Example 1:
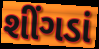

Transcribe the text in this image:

શીંગડાં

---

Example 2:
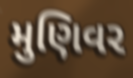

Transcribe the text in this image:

મુણિવર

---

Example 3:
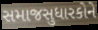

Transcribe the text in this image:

સમાજસુધારકોને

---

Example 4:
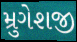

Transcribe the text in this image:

મ્રુગેશજી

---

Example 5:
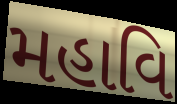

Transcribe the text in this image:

મહાવિ